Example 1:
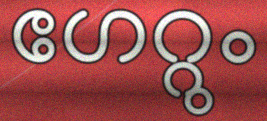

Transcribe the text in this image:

ഗേറ്റും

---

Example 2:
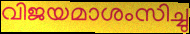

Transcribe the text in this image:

വിജയമാശംസിച്ചു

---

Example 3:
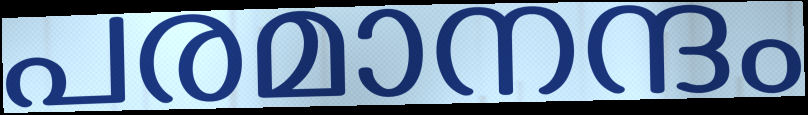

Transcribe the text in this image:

പരമാനന്ദം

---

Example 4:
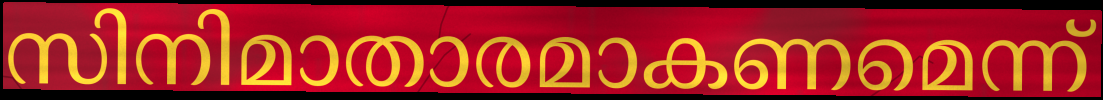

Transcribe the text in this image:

സിനിമാതാരമാകണമെന്ന്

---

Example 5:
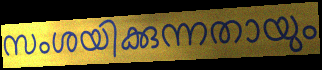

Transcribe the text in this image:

സംശയിക്കുന്നതായും